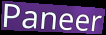
Paneer